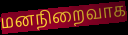
மனநிறைவாக